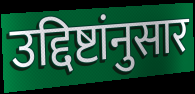
उद्दिष्टांनुसार